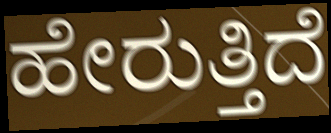
ಹೇರುತ್ತಿದೆ